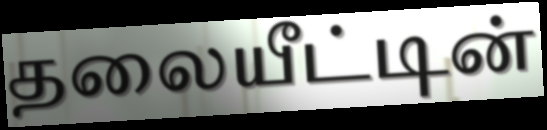
தலையீட்டின்